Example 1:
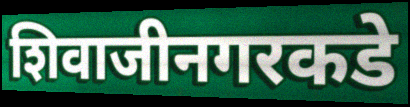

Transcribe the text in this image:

शिवाजीनगरकडे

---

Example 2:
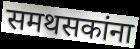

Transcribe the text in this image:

समथसकांना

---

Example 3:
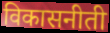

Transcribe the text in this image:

विकासनीती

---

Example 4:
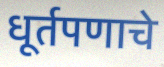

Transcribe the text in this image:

धूर्तपणाचे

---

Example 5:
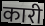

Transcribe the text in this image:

कारी